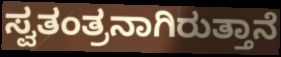
ಸ್ವತಂತ್ರನಾಗಿರುತ್ತಾನೆ